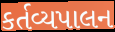
કર્તવ્યપાલન